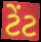
ટેંટ